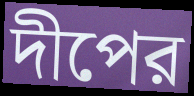
দীপের